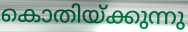
കൊതിയ്ക്കുന്നു